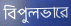
বিপুলভাৱে